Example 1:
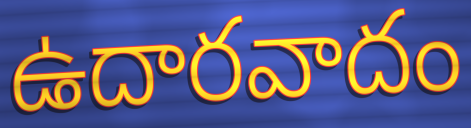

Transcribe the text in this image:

ఉదారవాదం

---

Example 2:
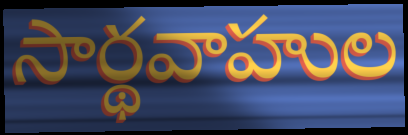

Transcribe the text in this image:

సార్థవాహుల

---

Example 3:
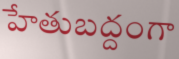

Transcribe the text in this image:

హేతుబద్దంగా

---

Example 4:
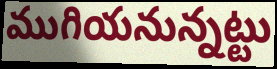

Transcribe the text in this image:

ముగియనున్నట్టు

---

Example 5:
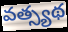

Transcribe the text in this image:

వత్స్యథ